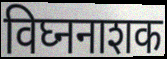
विघ्ननाशक